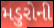
મડુરોની